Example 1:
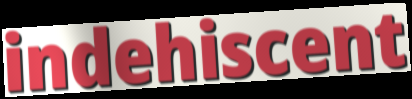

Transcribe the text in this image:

indehiscent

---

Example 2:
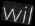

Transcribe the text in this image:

wil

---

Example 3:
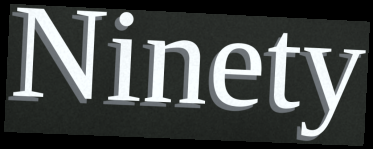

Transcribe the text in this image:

Ninety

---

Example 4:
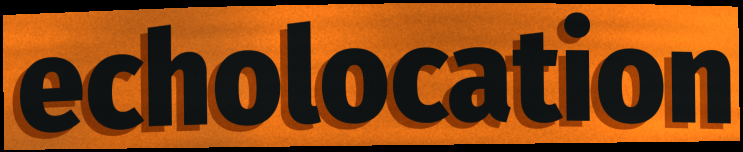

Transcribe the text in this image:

echolocation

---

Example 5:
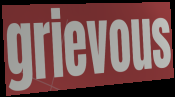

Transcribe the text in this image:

grievous